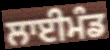
ਲਾਈਮੰਡ